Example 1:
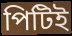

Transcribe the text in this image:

পিটিই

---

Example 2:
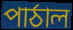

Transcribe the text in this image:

পাঠাল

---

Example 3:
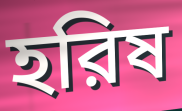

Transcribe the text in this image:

হরিষ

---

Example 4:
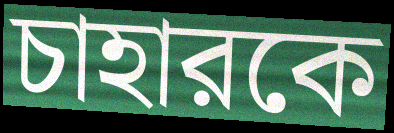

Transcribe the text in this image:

চাহারকে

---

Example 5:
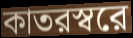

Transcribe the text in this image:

কাতরস্বরে